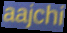
aajchi